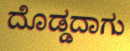
ದೊಡ್ಡದಾಗು